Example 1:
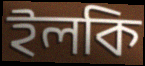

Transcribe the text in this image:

ইলকি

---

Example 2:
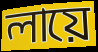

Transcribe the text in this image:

লায়ে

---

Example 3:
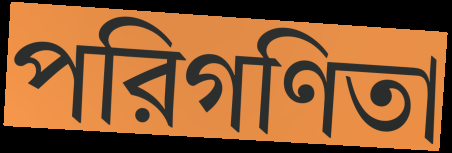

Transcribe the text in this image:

পরিগণিতা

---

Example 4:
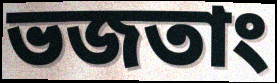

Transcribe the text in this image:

ভজতাং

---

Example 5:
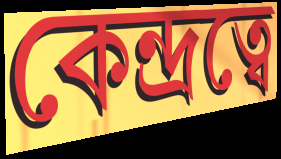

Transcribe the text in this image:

কেন্দ্রত্বে